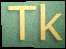
Tk